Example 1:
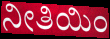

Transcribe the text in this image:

ನೀತಿಯಿಂ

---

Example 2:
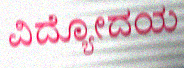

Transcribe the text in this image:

ವಿದ್ಯೋದಯ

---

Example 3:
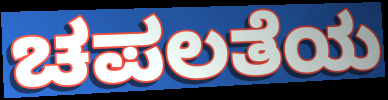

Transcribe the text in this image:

ಚಪಲತೆಯ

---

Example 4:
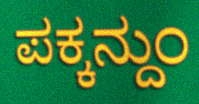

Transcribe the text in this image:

ಪಕ್ಕನ್ದುಂ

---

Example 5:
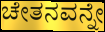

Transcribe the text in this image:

ಚೇತನವನ್ನೇ